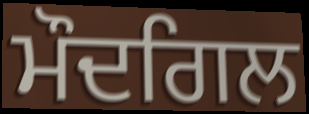
ਮੌਦਗਿਲ